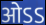
ओऽऽ